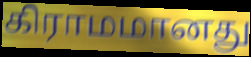
கிராமமானது